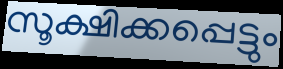
സൂക്ഷിക്കപ്പെട്ടും